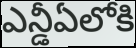
ఎన్డీఏలోకి